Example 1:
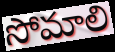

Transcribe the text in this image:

సోమాలి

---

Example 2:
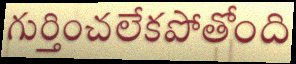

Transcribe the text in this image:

గుర్తించలేకపోతోంది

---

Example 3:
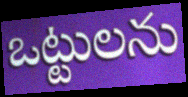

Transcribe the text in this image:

ఒట్టులను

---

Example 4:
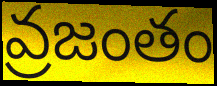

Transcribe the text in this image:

వ్రజంతం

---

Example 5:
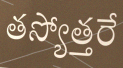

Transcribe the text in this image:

తస్యోత్తరే